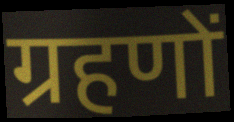
ग्रहणों